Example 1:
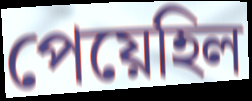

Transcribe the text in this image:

পেয়েহিল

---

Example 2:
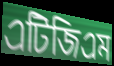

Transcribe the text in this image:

এটিজিএম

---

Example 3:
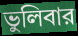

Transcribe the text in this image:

ভুলিবার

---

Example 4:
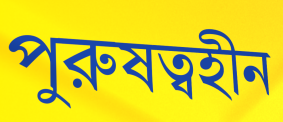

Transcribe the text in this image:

পুরুষত্বহীন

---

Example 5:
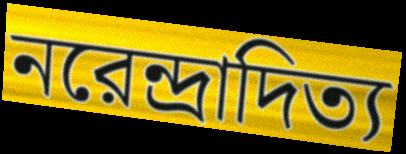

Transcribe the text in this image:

নরেন্দ্রাদিত্য